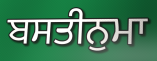
ਬਸਤੀਨੁਮਾ